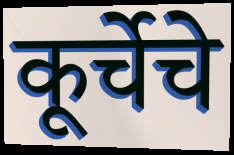
कूर्चेचे